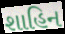
શાહિન